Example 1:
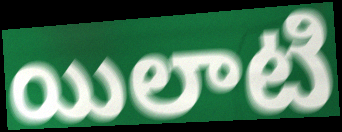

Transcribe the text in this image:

యిలాటి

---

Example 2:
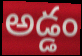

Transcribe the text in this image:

అడ్డం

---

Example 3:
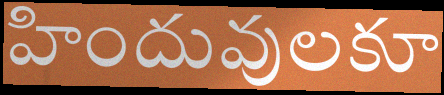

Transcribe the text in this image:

హిందువులకూ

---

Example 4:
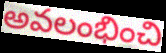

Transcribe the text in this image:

అవలంభించి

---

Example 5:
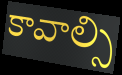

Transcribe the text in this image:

కావాల్సి